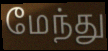
மேந்து